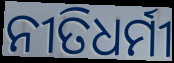
ନୀତିଧର୍ମୀ